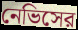
নেভিসের